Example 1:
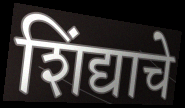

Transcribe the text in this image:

शिंद्याचे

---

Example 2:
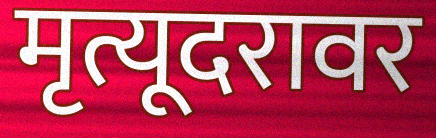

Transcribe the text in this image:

मृत्यूदरावर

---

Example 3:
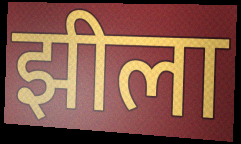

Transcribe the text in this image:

झीला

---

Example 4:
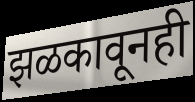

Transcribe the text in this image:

झळकावूनही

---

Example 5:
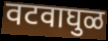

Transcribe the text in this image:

वटवाघुळ